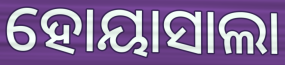
ହୋୟାସାଲା